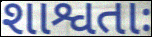
શાશ્વતાઃ